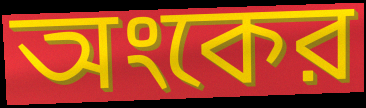
অংকের